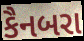
કૈનબરા